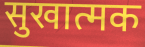
सुखात्मक